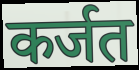
कर्जत